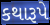
કથારૂપે